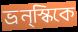
ভ্রন্‌স্কিকে